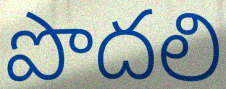
పొదలి